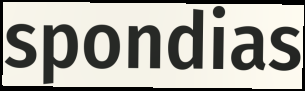
spondias